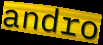
andro